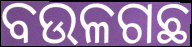
ବଉଳଗଛ